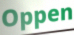
Oppen